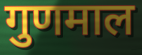
गुणमाल